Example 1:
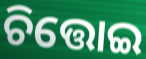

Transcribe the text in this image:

ଚିତ୍ତୋଇ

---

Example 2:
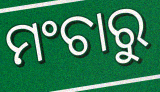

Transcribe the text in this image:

ମଂଚାରୁ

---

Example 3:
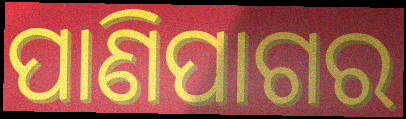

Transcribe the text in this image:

ପାଣିପାଗର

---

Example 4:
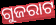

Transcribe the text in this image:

ଗୁଜରାଟ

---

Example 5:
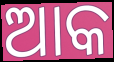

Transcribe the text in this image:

ଆକ